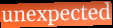
unexpected